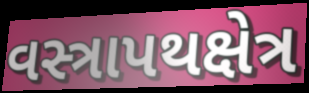
વસ્ત્રાપથક્ષેત્ર